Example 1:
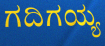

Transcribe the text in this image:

ಗದಿಗಯ್ಯ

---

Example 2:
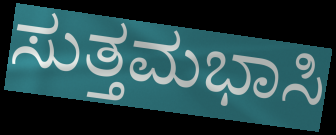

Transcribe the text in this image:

ಸುತ್ತಮಭಾಸಿ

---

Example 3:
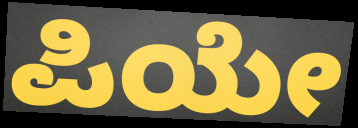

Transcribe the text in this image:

ಪಿಯೇ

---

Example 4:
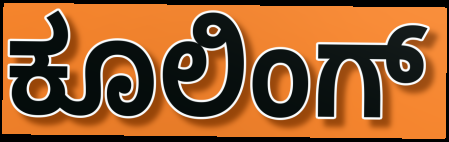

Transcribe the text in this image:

ಕೂಲಿಂಗ್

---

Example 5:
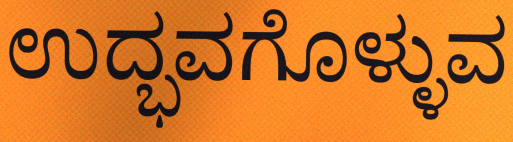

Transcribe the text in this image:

ಉದ್ಭವಗೊಳ್ಳುವ